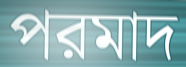
পরমাদ